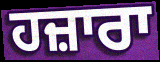
ਹਜ਼ਾਰਾ